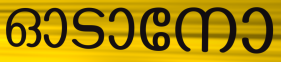
ഓടാനോ